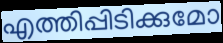
എത്തിപ്പിടിക്കുമോ